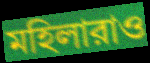
মহিলারাও